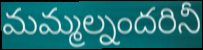
మమ్మల్నందరినీ